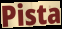
Pista